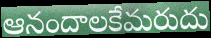
ఆనందాలకేమరుదు